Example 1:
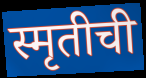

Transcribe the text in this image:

स्मृतीची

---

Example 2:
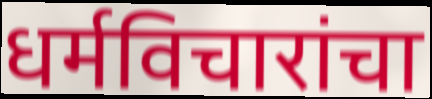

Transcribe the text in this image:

धर्मविचारांचा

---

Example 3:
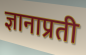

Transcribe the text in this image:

ज्ञानाप्रती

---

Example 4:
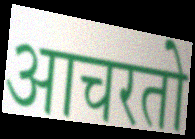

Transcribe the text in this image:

आचरतो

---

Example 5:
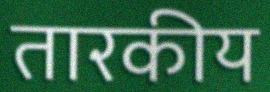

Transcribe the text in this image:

तारकीय